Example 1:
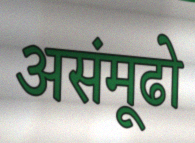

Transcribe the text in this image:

असंमूढो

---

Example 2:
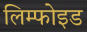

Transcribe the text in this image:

लिम्फोइड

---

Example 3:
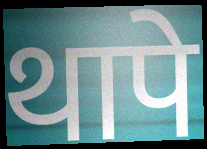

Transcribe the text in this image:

थापे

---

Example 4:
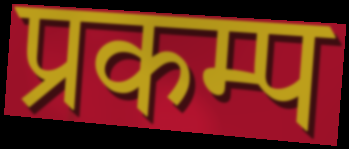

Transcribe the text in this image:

प्रकम्प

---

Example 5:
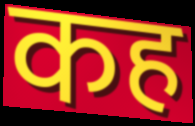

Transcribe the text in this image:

कह